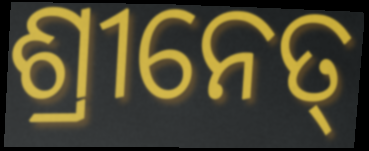
ଶ୍ରୀନେତ୍